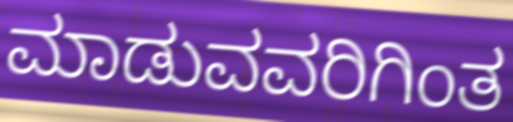
ಮಾಡುವವರಿಗಿಂತ